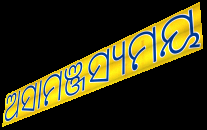
ଅସାମଞ୍ଜସ୍ୟମୟ